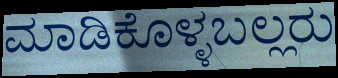
ಮಾಡಿಕೊಳ್ಳಬಲ್ಲರು